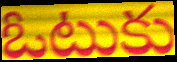
ఓటుకు